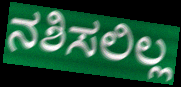
ನಶಿಸಲಿಲ್ಲ